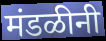
मंडळीनी